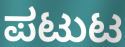
ಪಟುಟ